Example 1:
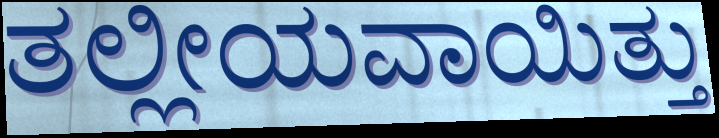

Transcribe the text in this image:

ತಲ್ಲೀಯವಾಯಿತ್ತು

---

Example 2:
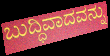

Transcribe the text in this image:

ಬುದ್ಧಿವಾದವನ್ನು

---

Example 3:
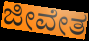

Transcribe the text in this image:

ಜೀವೇತ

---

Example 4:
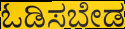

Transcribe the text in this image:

ಓಡಿಸಬೇಡ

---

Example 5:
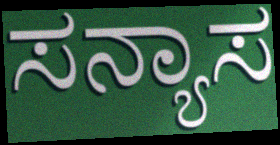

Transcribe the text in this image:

ಸನ್ಯಾಸ